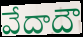
వేదాదౌ